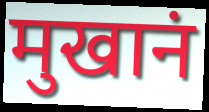
मुखानं